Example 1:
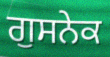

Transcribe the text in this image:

ਗੁਸਨੇਕ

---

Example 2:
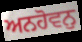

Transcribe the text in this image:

ਅਨਹੋਵਨੁ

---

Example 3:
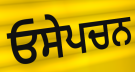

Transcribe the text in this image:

ਓਸੇਪਚਨ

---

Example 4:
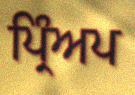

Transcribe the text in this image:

ਪ੍ਰਿੰਅਪ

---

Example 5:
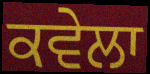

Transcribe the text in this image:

ਕਵੇਲਾ